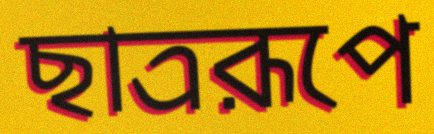
ছাত্ররূপে